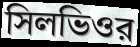
সিলভিওর